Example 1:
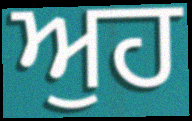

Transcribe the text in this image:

ਅੁਹ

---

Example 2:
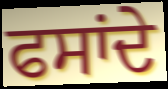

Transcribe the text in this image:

ਫਸਾਂਦੇ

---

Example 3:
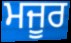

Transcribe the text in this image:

ਮਜੂਰ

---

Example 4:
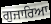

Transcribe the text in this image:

ਗੁਜਾਰਿਆ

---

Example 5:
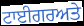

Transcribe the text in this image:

ਟਾਈਗਰਅਤੇ